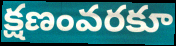
క్షణంవరకూ